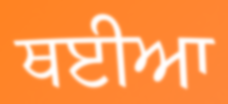
ਥਈਆ